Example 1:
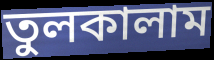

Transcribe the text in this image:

তুলকালাম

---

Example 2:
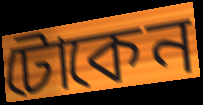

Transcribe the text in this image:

টোকেন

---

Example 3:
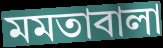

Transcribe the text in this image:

মমতাবালা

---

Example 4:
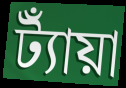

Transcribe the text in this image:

ট্যাঁয়া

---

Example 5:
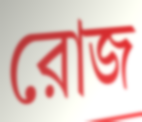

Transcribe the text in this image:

রোজ